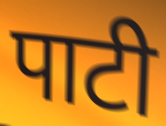
पाटी